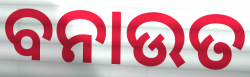
ବନାଉତ